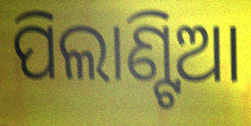
ପିଲାଣ୍ଟିଆ